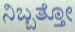
ನಿಬ್ಬತ್ತೋ